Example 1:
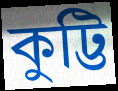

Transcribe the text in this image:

কুট্টি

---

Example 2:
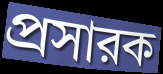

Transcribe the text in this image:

প্রসারক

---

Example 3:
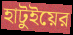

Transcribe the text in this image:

হাটুইয়ের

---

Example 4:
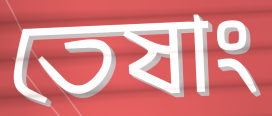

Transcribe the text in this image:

তেষাং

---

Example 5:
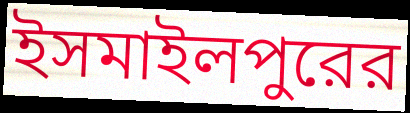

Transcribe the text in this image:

ইসমাইলপুরের